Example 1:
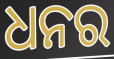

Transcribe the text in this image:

ଧନର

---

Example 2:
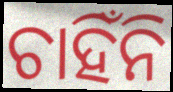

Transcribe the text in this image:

ଚାହିଁନି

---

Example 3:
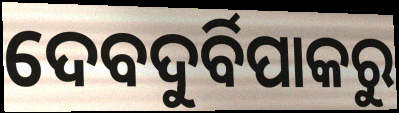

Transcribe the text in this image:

ଦେବଦୁର୍ବିପାକରୁ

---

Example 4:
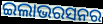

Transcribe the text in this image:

ଇଲାଭରସନର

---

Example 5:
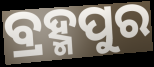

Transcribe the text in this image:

ବ୍ରହ୍ମପୁର